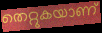
തെറ്റുകയാണ്